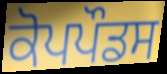
ਕੋਪਪੌਡਸ